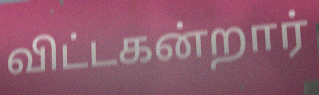
விட்டகன்றார்